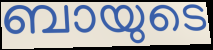
ബായുടെ